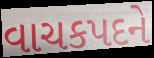
વાચકપદને